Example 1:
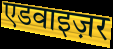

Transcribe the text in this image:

एडवाइज़र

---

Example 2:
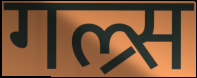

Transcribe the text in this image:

गल्र्स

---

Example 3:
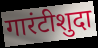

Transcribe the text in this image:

गारंटीशुदा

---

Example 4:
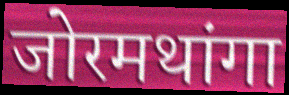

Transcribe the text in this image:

जोरमथांगा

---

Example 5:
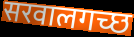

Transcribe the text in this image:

सरवालगच्छ